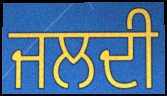
ਜਲਦੀ